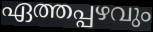
ഏത്തപ്പഴവും